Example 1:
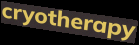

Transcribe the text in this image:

cryotherapy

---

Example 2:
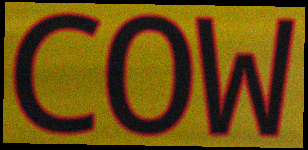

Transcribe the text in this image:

COW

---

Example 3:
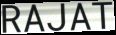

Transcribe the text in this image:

RAJAT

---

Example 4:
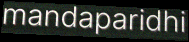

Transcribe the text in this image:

mandaparidhi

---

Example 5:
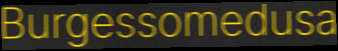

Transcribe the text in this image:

Burgessomedusa